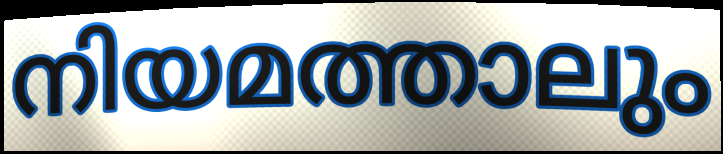
നിയമത്താലും